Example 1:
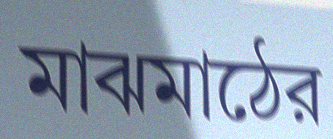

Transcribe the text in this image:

মাঝমাঠের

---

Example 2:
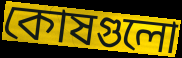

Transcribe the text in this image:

কোষগুলো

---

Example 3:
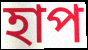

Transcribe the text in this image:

হাপ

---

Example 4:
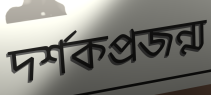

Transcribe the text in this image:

দর্শকপ্রজন্ম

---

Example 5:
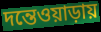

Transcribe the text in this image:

দন্তেওয়াড়ায়